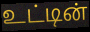
உட்டின்